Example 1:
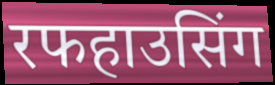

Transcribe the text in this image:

रफहाउसिंग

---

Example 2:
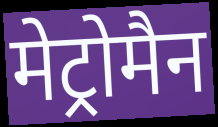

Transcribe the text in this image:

मेट्रोमैन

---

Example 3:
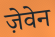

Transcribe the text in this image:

ज़ेवेन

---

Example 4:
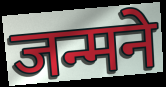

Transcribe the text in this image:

जन्मने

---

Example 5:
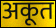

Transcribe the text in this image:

अकूत